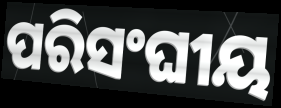
ପରିସଂଘୀୟ